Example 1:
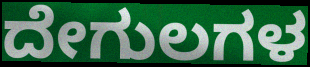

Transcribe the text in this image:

ದೇಗುಲಗಳ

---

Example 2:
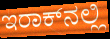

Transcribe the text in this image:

ಇರಾಕ್‍ನಲ್ಲಿ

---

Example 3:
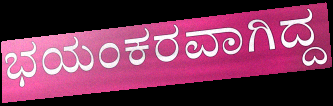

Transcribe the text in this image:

ಭಯಂಕರವಾಗಿದ್ದ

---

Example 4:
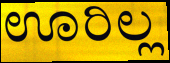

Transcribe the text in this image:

ಊರಿಲ್ಲ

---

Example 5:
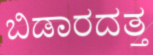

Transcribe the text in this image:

ಬಿಡಾರದತ್ತ